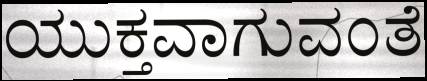
ಯುಕ್ತವಾಗುವಂತೆ